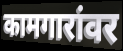
कामगारांवर